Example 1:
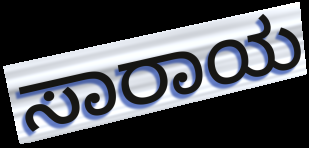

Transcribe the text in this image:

ಸಾರಾಯ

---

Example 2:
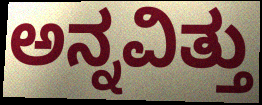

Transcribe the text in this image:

ಅನ್ನವಿತ್ತು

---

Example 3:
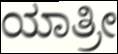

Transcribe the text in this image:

ಯಾತ್ರೀ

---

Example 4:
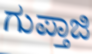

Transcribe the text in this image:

ಗುಪ್ತಾಜಿ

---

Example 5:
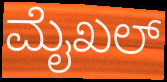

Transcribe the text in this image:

ಮೈಖಲ್